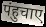
पंहुचाए